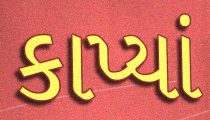
કાપ્યાં